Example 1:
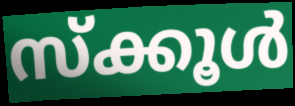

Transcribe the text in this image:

സ്ക്കൂൾ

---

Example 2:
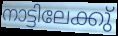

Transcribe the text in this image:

നാട്ടിലേക്കു്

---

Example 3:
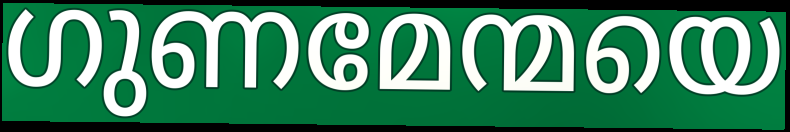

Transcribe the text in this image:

ഗുണമേന്മയെ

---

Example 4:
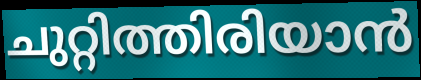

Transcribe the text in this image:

ചുറ്റിത്തിരിയാൻ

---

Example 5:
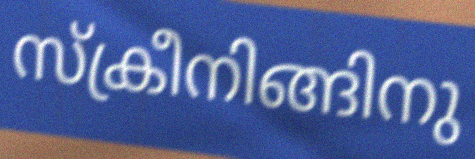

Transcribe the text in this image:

സ്ക്രീനിങ്ങിനു